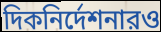
দিকনির্দেশনারও